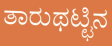
ತಾರುಥಟ್ಟಿನ